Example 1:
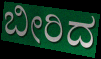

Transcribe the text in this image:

ಬೀರಿದ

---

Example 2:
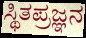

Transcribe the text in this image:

ಸ್ಥಿತಪ್ರಜ್ಞನ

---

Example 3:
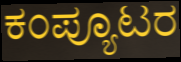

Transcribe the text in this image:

ಕಂಪ್ಯೂಟರ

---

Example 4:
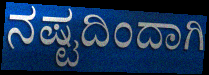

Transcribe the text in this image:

ನಷ್ಟದಿಂದಾಗಿ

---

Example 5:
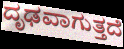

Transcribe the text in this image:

ದೃಢವಾಗುತ್ತದೆ